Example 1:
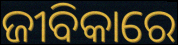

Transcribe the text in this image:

ଜୀବିକାରେ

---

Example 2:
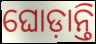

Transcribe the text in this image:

ଘୋଡ଼ାନ୍ତି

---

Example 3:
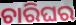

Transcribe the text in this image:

ଚାରିଘର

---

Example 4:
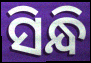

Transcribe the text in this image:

ସିନ୍ଧି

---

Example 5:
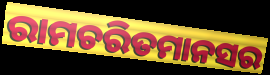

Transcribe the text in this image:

ରାମଚରିତମାନସର